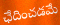
ఛేదించడమే